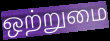
ஒற்றுமை